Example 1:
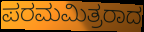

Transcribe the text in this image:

ಪರಮಮಿತ್ರರಾದ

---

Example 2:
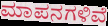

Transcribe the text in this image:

ಮಾಪನಗಳಿವೆ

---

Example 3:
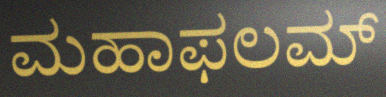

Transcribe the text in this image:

ಮಹಾಫಲಮ್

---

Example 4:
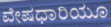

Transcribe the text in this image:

ವೇಷಧಾರಿಯೂ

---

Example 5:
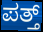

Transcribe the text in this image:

ಪತ್ತ್